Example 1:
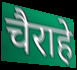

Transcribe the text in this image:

चैराहे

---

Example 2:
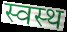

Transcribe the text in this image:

स्वस्थ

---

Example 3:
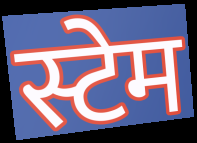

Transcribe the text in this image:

स्टेम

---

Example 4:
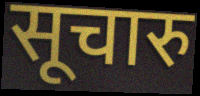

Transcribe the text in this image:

सूचारु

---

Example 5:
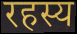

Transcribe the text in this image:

रहस्य